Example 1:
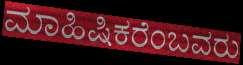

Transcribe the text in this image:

ಮಾಹಿಷಿಕರೆಂಬವರು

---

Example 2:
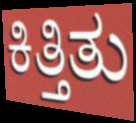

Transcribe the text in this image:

ಕಿತ್ತಿತು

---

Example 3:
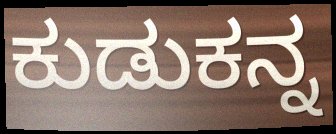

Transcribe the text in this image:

ಕುಡುಕನ್ನ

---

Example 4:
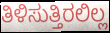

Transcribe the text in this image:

ತಿಳಿಸುತ್ತಿರಲಿಲ್ಲ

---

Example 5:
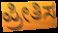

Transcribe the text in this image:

ಪ್ರೀತಿಸ